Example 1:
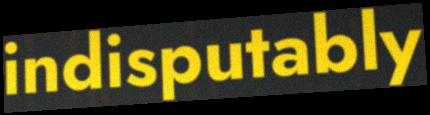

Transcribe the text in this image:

indisputably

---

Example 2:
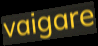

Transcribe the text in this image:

vaigare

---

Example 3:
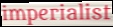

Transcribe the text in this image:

imperialist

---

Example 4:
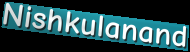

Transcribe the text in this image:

Nishkulanand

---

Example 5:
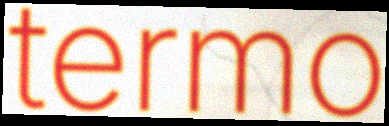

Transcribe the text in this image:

termo